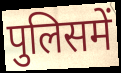
पुलिसमें